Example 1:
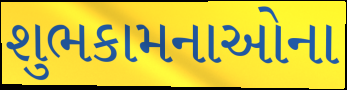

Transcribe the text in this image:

શુભકામનાઓના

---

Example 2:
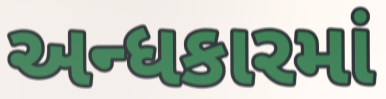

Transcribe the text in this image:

અન્ધકારમાં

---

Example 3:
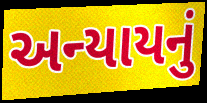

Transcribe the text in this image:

અન્યાયનું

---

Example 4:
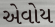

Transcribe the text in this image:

એવોય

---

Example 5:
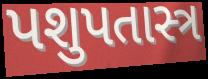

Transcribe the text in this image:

પશુપતાસ્ત્ર